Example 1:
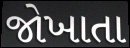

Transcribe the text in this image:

જોખાતા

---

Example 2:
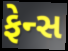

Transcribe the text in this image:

ફેન્સ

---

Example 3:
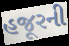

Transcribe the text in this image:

હજૂરની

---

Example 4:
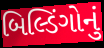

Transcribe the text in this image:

બિલ્ડિંગોનું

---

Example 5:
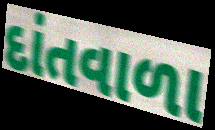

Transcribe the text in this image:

દાંતવાળા